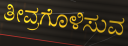
ತೀವ್ರಗೊಳಿಸುವ